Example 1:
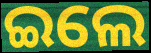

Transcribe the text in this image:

ଇଲେ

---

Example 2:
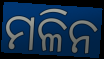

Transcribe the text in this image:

ମଳିନ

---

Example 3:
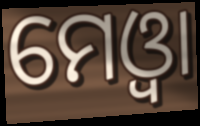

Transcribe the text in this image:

ମେଓ୍ୱା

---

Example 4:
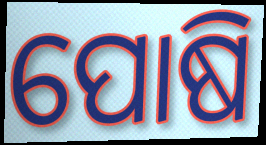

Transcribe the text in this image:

ପୋଷି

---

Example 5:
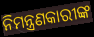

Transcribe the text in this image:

ନିମନ୍ତ୍ରଣକାରୀଙ୍କ